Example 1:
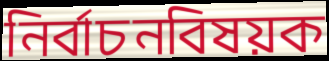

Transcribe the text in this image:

নির্বাচনবিষয়ক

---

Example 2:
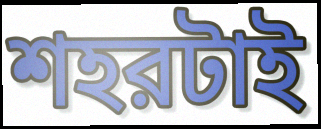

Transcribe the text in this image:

শহরটাই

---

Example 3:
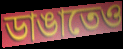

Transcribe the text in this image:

ডাঙাতেও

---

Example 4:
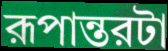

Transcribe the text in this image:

রূপান্তরটা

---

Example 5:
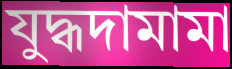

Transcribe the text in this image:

যুদ্ধদামামা